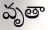
వృతా